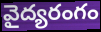
వైద్యరంగం